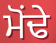
ਮੋਂਢੇ